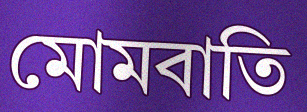
মোমবাতি